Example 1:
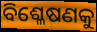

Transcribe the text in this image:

ବିଶ୍ଳେଷଣକୁ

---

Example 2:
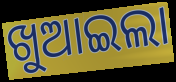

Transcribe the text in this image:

ଖୁଆଇଲା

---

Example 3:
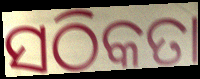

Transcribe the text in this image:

ସଠିକତା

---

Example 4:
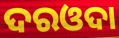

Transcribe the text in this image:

ଦରଓଦା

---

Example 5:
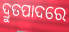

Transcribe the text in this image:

ଦ୍ରୁତପାଦରେ